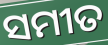
ସମୀତ